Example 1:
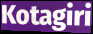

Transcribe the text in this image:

Kotagiri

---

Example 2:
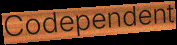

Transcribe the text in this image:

Codependent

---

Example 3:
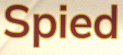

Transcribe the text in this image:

Spied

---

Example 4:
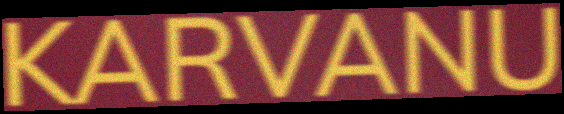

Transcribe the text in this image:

KARVANU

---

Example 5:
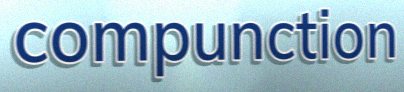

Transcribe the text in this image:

compunction